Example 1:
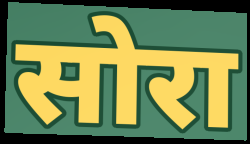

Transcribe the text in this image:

सोरा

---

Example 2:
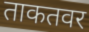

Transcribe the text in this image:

ताकतवर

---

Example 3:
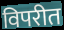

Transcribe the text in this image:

विपरीत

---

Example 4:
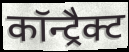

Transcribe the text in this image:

कॉन्ट्रैक्ट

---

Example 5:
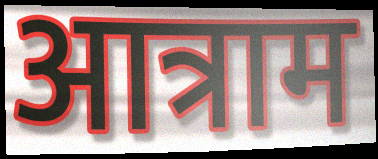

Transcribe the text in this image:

आत्राम